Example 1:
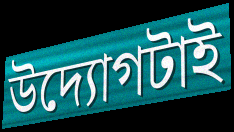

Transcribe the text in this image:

উদ্যোগটাই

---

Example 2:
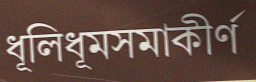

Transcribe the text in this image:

ধূলিধূমসমাকীর্ণ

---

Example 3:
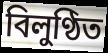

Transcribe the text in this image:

বিলুণ্ঠিত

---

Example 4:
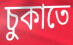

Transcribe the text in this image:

চুকাতে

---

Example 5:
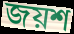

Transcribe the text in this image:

জয়শ